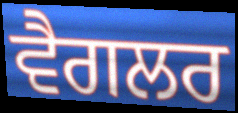
ਵੈਗਲਰ